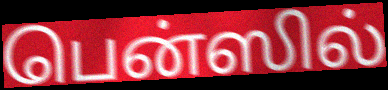
பென்ஸில்